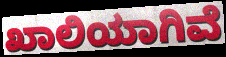
ಖಾಲಿಯಾಗಿವೆ